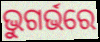
ଭୁଗର୍ଭରେ